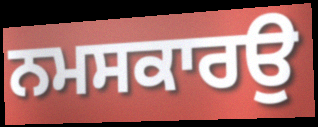
ਨਮਸਕਾਰਉ